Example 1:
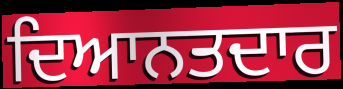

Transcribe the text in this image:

ਦਿਆਨਤਦਾਰ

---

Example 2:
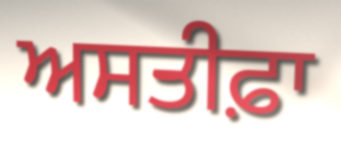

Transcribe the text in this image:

ਅਸਤੀਫ਼ਾ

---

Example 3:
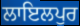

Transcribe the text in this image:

ਲਾਇਲਪੁਰ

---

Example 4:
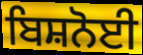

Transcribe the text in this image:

ਬਿਸ਼ਨੋਈ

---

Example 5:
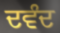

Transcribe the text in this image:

ਦਵੰਦ